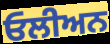
ਓਲੀਅਨ